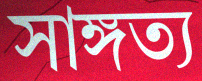
সাঙ্গত্য